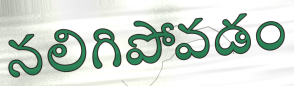
నలిగిపోవడం